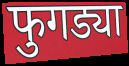
फुगड्या